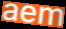
aem